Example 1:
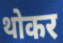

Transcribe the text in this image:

थोकर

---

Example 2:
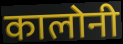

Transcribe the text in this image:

कालोनी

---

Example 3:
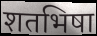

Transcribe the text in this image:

शतभिषा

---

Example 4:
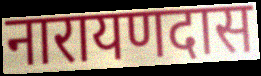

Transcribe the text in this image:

नारायणदास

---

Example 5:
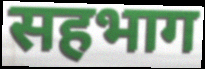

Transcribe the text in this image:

सहभाग